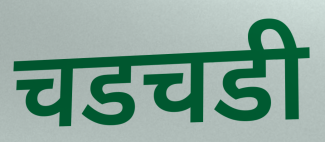
चडचडी